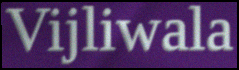
Vijliwala